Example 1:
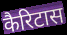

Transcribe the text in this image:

कैरिटास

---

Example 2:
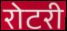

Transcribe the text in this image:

रोटरी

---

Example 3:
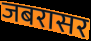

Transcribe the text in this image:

जबरासर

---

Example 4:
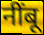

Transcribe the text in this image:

नींबू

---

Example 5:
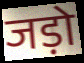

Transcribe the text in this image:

जड़ो